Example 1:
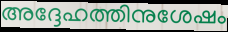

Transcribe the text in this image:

അദ്ദേഹത്തിനുശേഷം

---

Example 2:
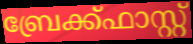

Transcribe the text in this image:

ബ്രേക്ക്ഫാസ്റ്റ്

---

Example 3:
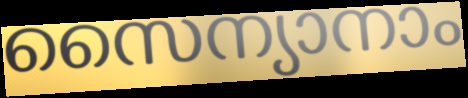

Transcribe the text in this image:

സൈന്യാനാം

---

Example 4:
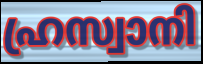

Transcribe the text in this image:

ഹ്രസ്വാനി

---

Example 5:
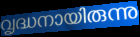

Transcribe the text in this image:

വൃദ്ധനായിരുന്നു